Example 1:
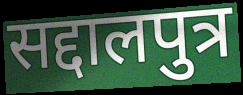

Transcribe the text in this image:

सद्दालपुत्र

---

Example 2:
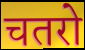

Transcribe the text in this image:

चतरो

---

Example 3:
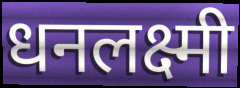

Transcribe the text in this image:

धनलक्ष्मी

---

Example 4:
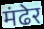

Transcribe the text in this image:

मंढेर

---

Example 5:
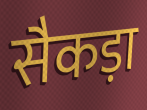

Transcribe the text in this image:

सैकड़ा